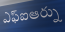
ఎఫ్ఐఆర్ను